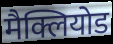
मैक्लियोड